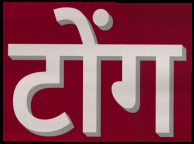
टोंग